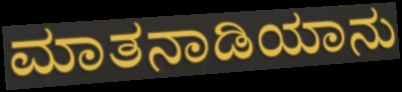
ಮಾತನಾಡಿಯಾನು